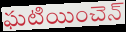
ఘటియించెన్